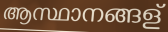
ആസ്ഥാനങ്ങള്